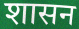
शासन